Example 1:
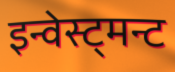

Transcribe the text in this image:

इन्वेस्ट्मन्ट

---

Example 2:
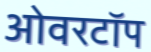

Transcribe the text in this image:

ओवरटॉप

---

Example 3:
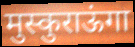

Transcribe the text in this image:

मुस्कुराऊंगा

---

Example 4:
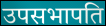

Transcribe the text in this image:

उपसभापति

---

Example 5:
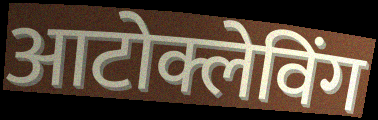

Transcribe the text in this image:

आटोक्लेविंग